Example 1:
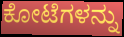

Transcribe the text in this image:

ಕೋಟೆಗಳನ್ನು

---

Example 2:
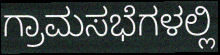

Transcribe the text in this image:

ಗ್ರಾಮಸಭೆಗಳಲ್ಲಿ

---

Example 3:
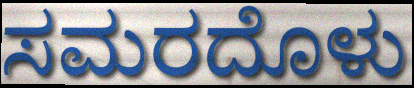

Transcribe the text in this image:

ಸಮರದೊಳು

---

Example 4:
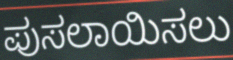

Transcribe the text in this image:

ಪುಸಲಾಯಿಸಲು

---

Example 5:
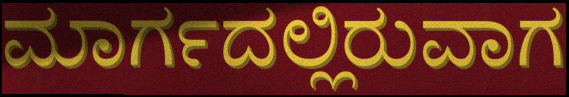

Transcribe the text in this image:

ಮಾರ್ಗದಲ್ಲಿರುವಾಗ